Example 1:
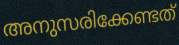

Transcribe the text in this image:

അനുസരിക്കേണ്ടത്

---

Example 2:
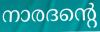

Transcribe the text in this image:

നാരദന്റെ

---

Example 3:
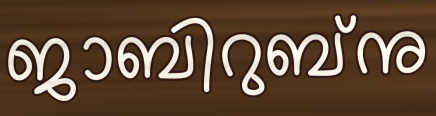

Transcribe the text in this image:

ജാബിറുബ്നു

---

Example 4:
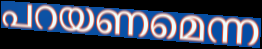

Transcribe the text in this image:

പറയണമെന്ന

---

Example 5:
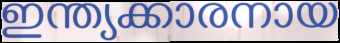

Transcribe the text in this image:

ഇന്ത്യക്കാരനായ